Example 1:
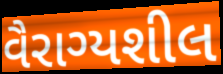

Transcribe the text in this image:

વૈરાગ્યશીલ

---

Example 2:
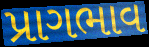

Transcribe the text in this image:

પ્રાગભાવ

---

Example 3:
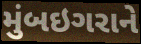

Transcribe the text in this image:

મુંબઇગરાને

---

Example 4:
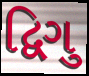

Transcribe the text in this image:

દ્વિગુ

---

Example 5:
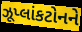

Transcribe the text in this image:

ઝૂપ્લાંકટોનને